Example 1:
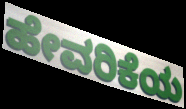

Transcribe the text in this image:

ಹೇವರಿಕೆಯ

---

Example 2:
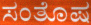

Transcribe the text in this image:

ಸಂತೊಷ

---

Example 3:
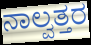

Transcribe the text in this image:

ನಾಲ್ವತ್ತರ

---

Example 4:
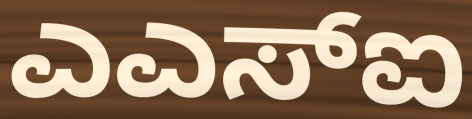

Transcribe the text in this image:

ಎಎಸ್ಐ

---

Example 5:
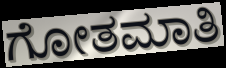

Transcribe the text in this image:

ಗೋತಮಾತಿ